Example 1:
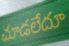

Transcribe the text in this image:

చూడలేదూ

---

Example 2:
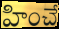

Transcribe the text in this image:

హించే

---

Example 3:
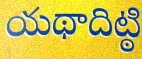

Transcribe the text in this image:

యథాదిట్ఠి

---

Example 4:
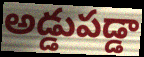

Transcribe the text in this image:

అడ్డుపడ్డా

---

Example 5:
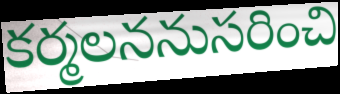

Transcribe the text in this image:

కర్మలననుసరించి